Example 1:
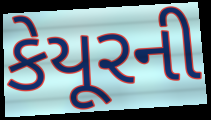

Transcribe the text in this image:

કેયૂરની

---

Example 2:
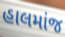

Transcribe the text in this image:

હાલમાંજ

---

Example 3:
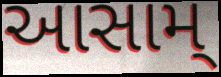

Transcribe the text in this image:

આસામ્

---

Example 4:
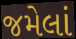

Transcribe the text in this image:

જમેલાં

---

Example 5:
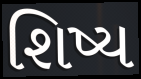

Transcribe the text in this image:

શિષ્ય